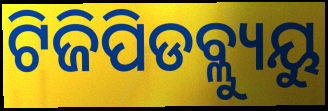
ଟିଜିପିଡବ୍ଲ୍ୟୁୟୁ